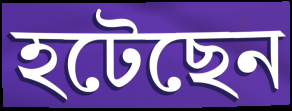
হটেছেন